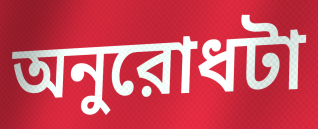
অনুরোধটা